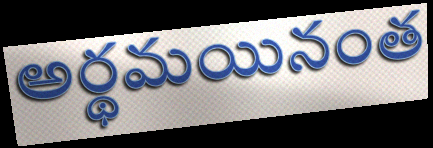
అర్థమయినంత